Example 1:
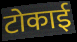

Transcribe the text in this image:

टोकाई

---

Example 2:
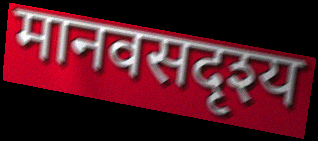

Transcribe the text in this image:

मानवसदृश्य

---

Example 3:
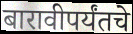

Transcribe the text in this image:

बारावीपर्यंतचे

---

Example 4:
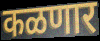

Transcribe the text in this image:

कळणार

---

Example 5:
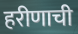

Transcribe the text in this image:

हरीणाची